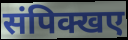
संपिक्खए